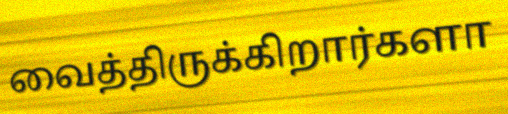
வைத்திருக்கிறார்களா